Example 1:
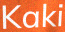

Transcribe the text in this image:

Kaki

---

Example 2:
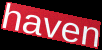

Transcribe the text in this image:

haven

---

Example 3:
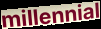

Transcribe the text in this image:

millennial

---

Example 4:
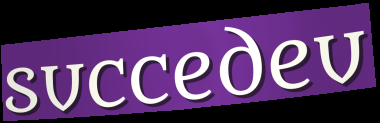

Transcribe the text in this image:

succedeu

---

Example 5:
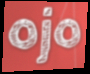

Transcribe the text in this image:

ojo